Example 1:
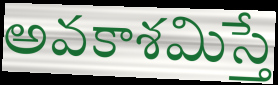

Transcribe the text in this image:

అవకాశమిస్తే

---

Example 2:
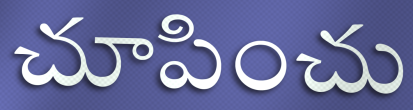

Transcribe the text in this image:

చూపించు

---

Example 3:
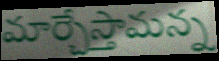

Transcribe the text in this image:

మార్చేస్తామన్న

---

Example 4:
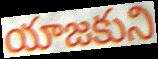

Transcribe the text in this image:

యాజకుని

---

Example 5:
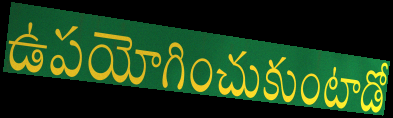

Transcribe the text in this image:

ఉపయోగించుకుంటాడో